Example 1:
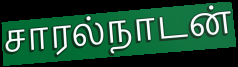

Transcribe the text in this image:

சாரல்நாடன்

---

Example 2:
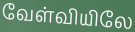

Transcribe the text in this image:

வேள்வியிலே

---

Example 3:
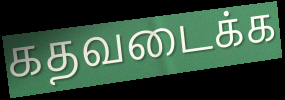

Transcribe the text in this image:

கதவடைக்க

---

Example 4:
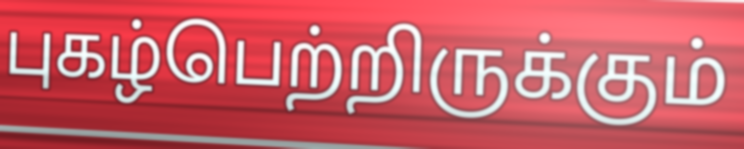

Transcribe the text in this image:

புகழ்பெற்றிருக்கும்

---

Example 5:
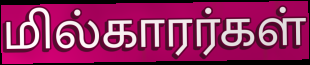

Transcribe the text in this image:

மில்காரர்கள்